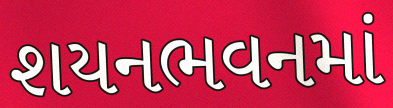
શયનભવનમાં